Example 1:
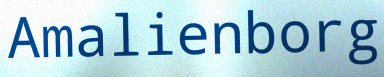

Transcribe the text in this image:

Amalienborg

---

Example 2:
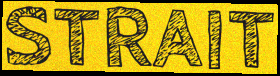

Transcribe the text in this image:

STRAIT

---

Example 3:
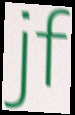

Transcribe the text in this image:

jf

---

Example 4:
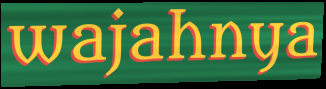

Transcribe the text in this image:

wajahnya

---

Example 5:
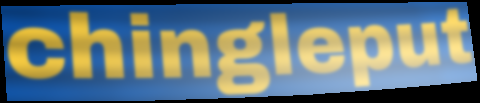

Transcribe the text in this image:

chingleput